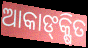
ଆକାଙ୍‍କ୍ଷିତ